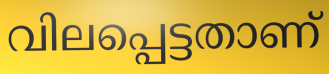
വിലപ്പെട്ടതാണ്